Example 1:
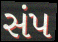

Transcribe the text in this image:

સંપ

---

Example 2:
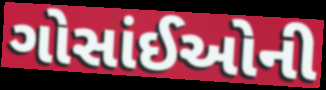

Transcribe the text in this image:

ગોસાંઈઓની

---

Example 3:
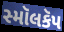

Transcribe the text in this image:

સ્મૉલકૅપ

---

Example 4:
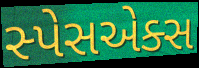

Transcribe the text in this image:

સ્પેસએક્સ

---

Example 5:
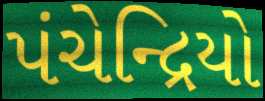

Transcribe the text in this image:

પંચેન્દ્રિયો